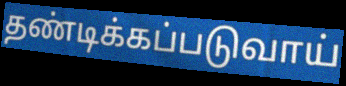
தண்டிக்கப்படுவாய்